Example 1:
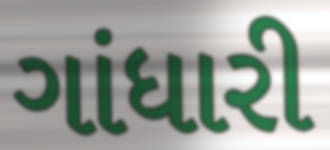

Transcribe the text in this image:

ગાંધારી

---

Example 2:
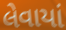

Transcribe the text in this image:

લેવાયાં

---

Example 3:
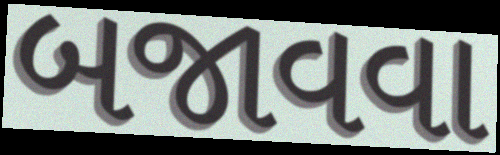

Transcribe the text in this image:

બજાવવા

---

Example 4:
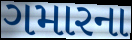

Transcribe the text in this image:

ગમારના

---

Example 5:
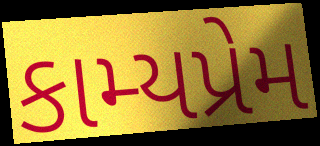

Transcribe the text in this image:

કામ્યપ્રેમ